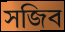
সজিব